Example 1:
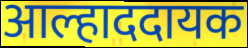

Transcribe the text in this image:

आल्हाददायक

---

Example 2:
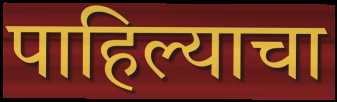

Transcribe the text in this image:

पाहिल्याचा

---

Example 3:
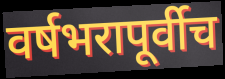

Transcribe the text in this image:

वर्षभरापूर्वीच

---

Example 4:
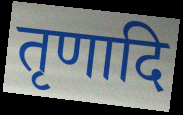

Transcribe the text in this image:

तृणादि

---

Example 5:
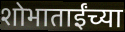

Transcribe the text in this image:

शोभाताईंच्या